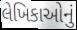
લેખિકાઓનું